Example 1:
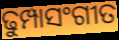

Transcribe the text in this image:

ଢୁମ୍ପାସଂଗୀତ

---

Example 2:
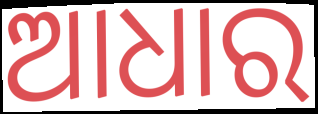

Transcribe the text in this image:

ଆଧାର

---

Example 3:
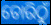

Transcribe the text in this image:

ତୋରିଠୁଁ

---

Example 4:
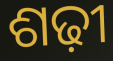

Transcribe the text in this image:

ଶଢ଼ୀ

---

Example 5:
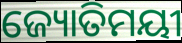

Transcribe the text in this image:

ଜ୍ୟୋତିମୟୀ